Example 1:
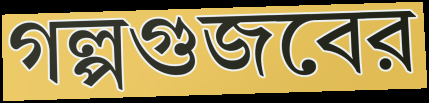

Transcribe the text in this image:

গল্পগুজবের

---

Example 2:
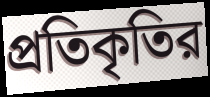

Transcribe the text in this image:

প্রতিকৃতির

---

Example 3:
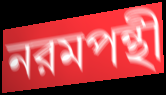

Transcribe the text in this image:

নরমপন্থী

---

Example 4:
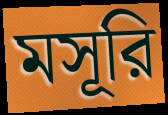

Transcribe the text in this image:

মসূরি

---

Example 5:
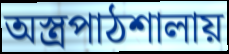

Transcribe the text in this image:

অস্ত্রপাঠশালায়